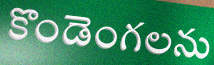
కొండెంగలను